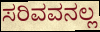
ಸರಿವವನಲ್ಲ